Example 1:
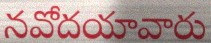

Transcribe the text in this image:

నవోదయావారు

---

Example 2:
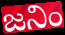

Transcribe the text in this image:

జనిం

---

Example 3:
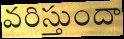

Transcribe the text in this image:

వరిస్తుందా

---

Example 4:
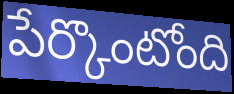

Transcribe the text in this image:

పేర్కొంటోంది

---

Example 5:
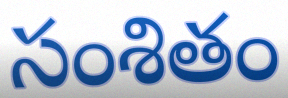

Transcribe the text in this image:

సంశితం